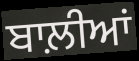
ਬਾਲ਼ੀਆਂ